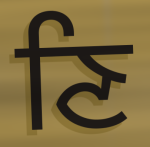
ਣਿ